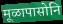
मूळापासोनि